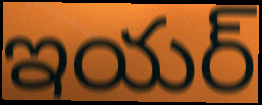
ఇయర్